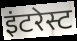
इंटरेस्ट